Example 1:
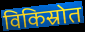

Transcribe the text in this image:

विकिस्रोत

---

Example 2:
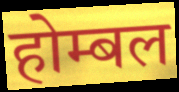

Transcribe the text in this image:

होम्बल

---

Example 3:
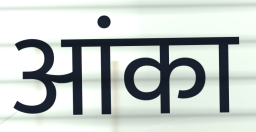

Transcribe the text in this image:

आंका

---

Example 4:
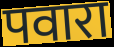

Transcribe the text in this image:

पवारा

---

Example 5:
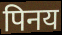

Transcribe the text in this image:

पिनय